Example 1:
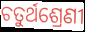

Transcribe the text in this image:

ଚତୁର୍ଥଶ୍ରେଣୀ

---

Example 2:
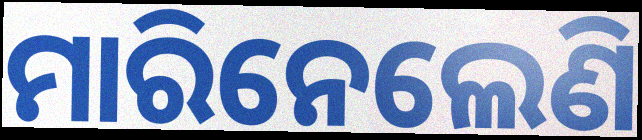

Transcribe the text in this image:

ମାରିନେଲେଣି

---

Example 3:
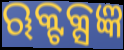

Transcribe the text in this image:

ୠକ୍ଟକ୍ସଜ୍ଞ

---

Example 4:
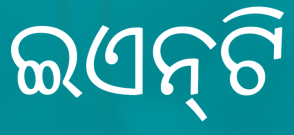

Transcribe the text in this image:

ଇଏନ୍‌ଟି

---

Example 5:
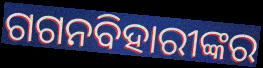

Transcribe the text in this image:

ଗଗନବିହାରୀଙ୍କର